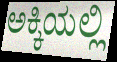
ಅಕ್ಕಿಯಲ್ಲಿ